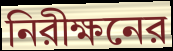
নিরীক্ষনের